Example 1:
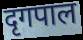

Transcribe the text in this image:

दृगपाल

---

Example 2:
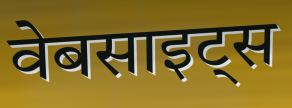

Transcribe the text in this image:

वेबसाइट्स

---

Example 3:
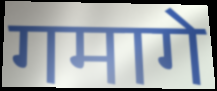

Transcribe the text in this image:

गमागे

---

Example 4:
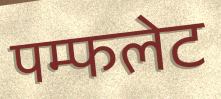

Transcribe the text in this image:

पम्फलेट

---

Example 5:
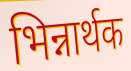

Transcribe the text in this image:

भिन्नार्थक